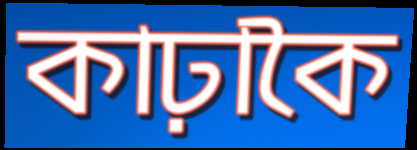
কাঢ়াকৈ